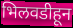
भिलवडीहून